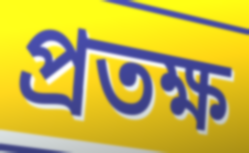
প্রতক্ষ